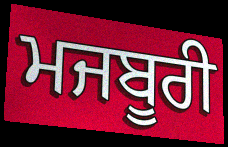
ਮਜਬੂਰੀ